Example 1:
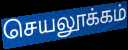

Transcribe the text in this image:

செயலூக்கம்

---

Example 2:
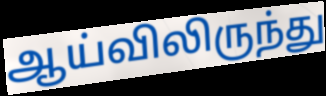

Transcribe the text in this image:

ஆய்விலிருந்து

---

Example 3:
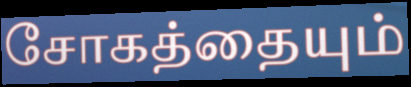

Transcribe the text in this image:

சோகத்தையும்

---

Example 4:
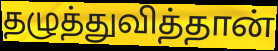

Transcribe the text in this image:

தழுத்துவித்தான்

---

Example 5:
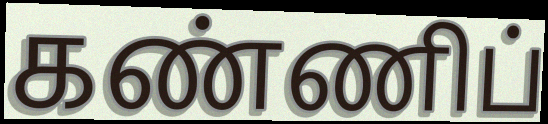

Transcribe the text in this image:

கண்ணிப்